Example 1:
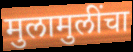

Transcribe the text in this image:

मुलामुलींचा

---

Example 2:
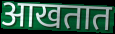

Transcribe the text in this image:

आखतात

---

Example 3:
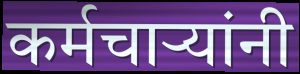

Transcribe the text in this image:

कर्मचाऱ्यांनी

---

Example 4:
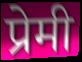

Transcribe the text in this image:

प्रेमी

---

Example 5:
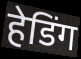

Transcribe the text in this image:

हेडिंग